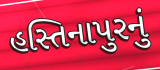
હસ્તિનાપુરનું